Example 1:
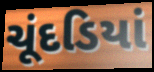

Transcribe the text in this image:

ચૂંદડિયાં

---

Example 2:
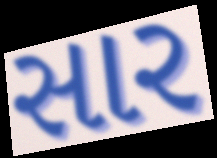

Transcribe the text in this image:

સાર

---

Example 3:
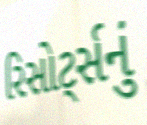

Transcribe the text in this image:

રિસોર્ટ્સનું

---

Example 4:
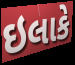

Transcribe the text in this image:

ઇલાકે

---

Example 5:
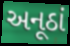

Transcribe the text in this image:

અનૂઠાં